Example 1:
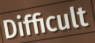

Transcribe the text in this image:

Difficult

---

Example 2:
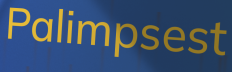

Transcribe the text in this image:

Palimpsest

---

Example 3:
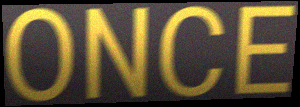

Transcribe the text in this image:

ONCE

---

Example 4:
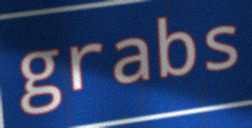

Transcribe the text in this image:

grabs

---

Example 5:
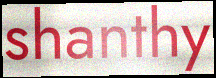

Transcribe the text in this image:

shanthy